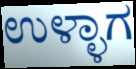
ಉಳ್ಳಾಗ